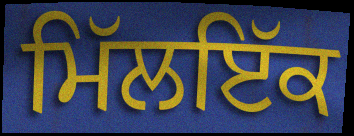
ਮਿੱਲਇੱਕ